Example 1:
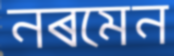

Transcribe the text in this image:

নৰমেন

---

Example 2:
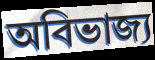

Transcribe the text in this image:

অবিভাজ্য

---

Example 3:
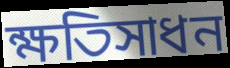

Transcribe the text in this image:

ক্ষতিসাধন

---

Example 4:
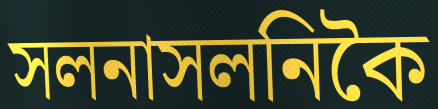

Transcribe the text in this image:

সলনাসলনিকৈ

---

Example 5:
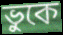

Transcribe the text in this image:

ভুকে